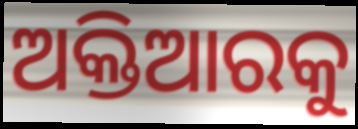
ଅକ୍ତିଆରକୁ